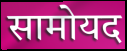
सामोयद